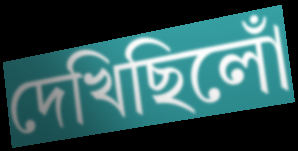
দেখিছিলোঁ